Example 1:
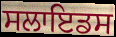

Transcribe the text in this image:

ਸਲਾਇਡਸ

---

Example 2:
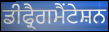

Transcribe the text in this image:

ਡੀਫ੍ਰੈਗਮੈਂਟੇਸ਼ਨ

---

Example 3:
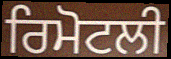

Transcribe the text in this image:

ਰਿਮੋਟਲੀ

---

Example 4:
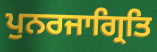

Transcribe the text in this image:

ਪੁਨਰਜਾਗ੍ਰਿਤਿ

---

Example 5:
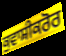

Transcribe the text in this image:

ਕੁਵਾਸ਼ੀਕਰੋਰ